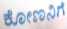
ಕೋಣನಿಗೆ